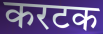
करटक